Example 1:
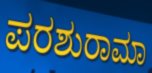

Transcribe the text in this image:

ಪರಶುರಾಮಾ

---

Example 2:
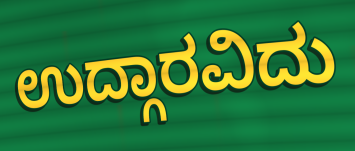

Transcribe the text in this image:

ಉದ್ಗಾರವಿದು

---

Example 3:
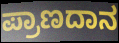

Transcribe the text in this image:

ಪ್ರಾಣದಾನ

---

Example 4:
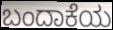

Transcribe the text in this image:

ಬಂದಾಕೆಯ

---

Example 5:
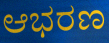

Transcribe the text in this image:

ಆಭರಣ